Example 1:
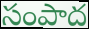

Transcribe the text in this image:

సంపాద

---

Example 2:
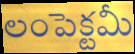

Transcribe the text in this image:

లంపెక్టమీ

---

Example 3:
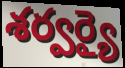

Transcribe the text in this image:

శర్వర్యై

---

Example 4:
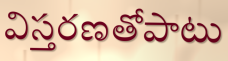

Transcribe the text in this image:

విస్తరణతోపాటు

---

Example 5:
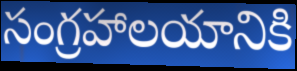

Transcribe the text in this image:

సంగ్రహాలయానికి